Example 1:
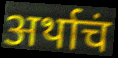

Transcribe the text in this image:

अर्थाचं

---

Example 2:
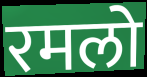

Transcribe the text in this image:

रमलो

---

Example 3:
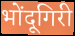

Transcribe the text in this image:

भोंदूगिरी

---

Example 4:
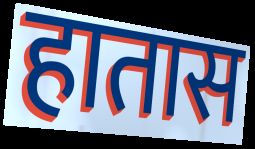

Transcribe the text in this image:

हातास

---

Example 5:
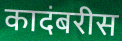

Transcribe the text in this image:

कादंबरीस